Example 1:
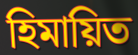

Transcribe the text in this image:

হিমায়িত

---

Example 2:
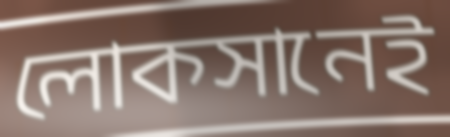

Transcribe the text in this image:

লোকসানেই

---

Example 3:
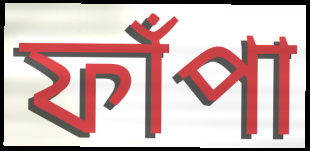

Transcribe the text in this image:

ফাঁপা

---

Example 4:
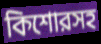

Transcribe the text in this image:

কিশোরসহ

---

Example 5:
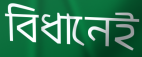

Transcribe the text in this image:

বিধানেই